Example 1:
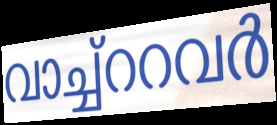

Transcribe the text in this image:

വാച്ച്ററവർ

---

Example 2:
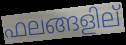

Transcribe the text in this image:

ഫലങ്ങളില്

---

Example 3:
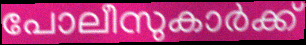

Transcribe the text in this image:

പോലീസുകാർക്ക്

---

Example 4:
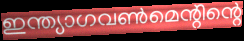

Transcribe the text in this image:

ഇന്ത്യാഗവൺമെന്റിന്റെ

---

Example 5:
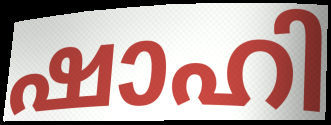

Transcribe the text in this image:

ഷാഹി